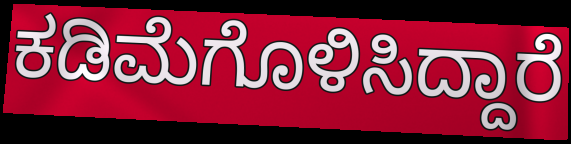
ಕಡಿಮೆಗೊಳಿಸಿದ್ದಾರೆ